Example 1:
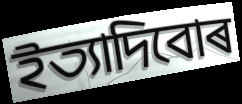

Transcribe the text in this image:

ইত্যাদিবোৰ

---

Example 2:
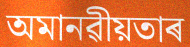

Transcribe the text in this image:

অমানৱীয়তাৰ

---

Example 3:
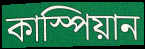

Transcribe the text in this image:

কাস্পিয়ান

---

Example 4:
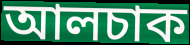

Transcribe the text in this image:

আলচাক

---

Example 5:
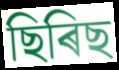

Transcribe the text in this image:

ছিৰিছ